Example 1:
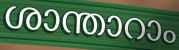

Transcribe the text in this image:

ശാന്താറാം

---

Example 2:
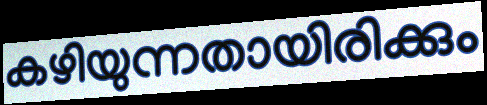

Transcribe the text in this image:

കഴിയുന്നതായിരിക്കും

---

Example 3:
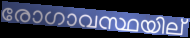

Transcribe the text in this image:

രോഗാവസ്ഥയില്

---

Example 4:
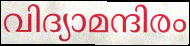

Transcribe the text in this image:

വിദ്യാമന്ദിരം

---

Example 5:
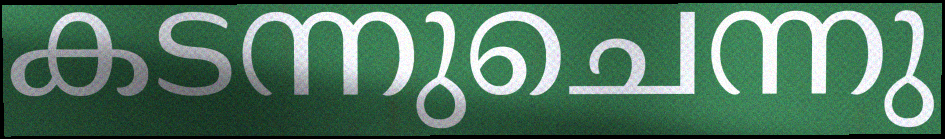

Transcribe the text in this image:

കടന്നുചെന്നു